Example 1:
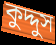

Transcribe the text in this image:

কুদ্দুস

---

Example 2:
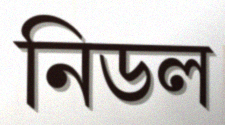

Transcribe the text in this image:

নিডল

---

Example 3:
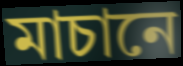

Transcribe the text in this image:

মাচানে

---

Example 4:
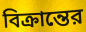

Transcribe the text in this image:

বিক্রান্তের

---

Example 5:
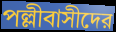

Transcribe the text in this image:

পল্লীবাসীদের